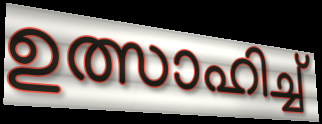
ഉത്സാഹിച്ച്